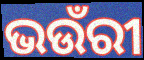
ଭଉଁରୀ